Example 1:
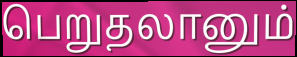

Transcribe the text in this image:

பெறுதலானும்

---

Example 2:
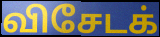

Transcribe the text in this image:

விசேடக்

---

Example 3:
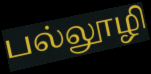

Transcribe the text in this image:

பல்லூழி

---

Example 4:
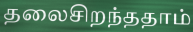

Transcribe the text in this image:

தலைசிறந்ததாம்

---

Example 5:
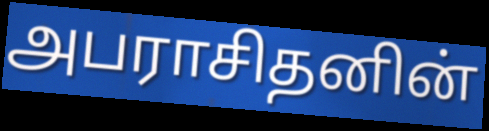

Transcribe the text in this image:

அபராசிதனின்